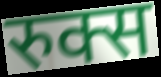
रुक्स